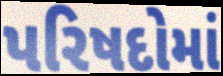
પરિષદોમાં